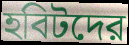
হবিটদের